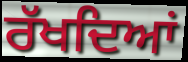
ਰੱਖਦਿਆਂ